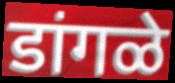
डांगळे